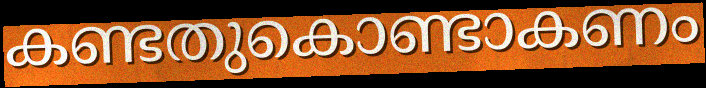
കണ്ടതുകൊണ്ടാകണം